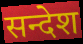
सन्देश